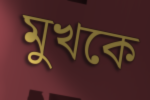
মুখকে